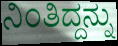
ನಿಂತಿದ್ದನ್ನು